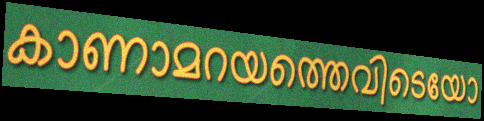
കാണാമറയത്തെവിടെയോ